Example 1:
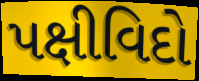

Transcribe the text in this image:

પક્ષીવિદો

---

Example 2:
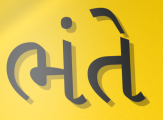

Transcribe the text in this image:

ભંતે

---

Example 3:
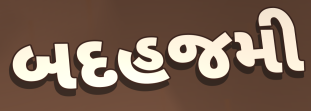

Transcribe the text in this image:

બદહજમી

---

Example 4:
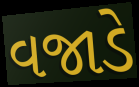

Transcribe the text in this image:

વજાડે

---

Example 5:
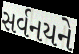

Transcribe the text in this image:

સર્વનયને